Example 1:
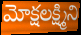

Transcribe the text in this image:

మోక్షలక్ష్మిని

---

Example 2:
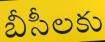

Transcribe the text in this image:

బీసీలకు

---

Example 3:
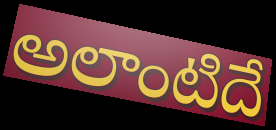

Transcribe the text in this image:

అలాంటిదే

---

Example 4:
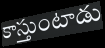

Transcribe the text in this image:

కాస్తుంటాడు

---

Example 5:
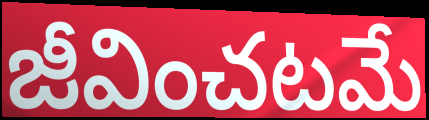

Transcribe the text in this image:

జీవించటమే